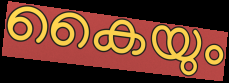
കൈയും